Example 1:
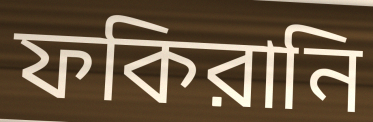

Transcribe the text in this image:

ফকিরানি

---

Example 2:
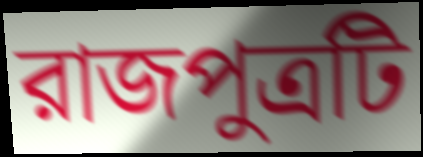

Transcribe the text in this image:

রাজপুত্রটি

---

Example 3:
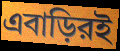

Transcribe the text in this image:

এবাড়িরই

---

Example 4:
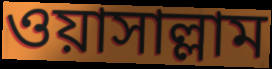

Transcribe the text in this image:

ওয়াসাল্লাম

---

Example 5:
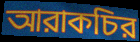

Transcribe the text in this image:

আরাকচির